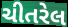
ચીતરેલ